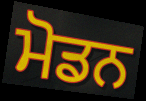
ਮੋਡਨ